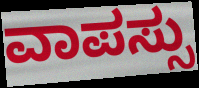
ವಾಪಸ್ಸು